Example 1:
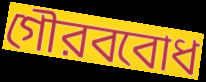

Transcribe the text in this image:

গৌরববোধ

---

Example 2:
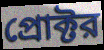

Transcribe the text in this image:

প্রোক্টর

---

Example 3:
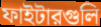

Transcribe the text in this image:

ফাইটারগুলি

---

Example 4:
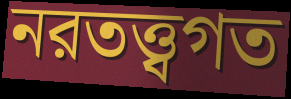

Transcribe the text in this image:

নরতত্ত্বগত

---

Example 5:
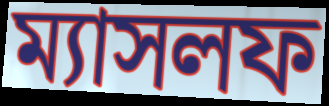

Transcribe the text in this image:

ম্যাসলফ